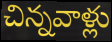
చిన్నవాళ్లు